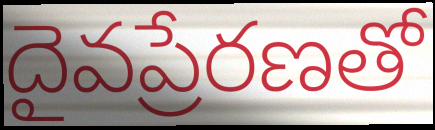
దైవప్రేరణతో